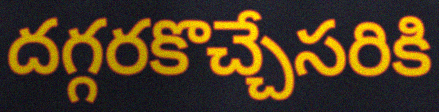
దగ్గరకొచ్చేసరికి